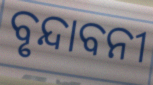
ବୃନ୍ଦାବନୀ